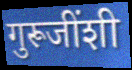
गुरूजींशी